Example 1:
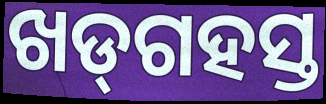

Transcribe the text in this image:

ଖଡ୍‌ଗହସ୍ତ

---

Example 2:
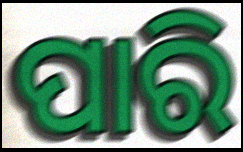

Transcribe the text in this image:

ପାରି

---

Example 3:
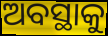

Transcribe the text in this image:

ଅବସ୍ଥାକୁ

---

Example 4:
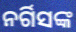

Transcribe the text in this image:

ନର୍ଗିସଙ୍କ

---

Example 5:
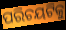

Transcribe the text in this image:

ପରିଚୟଟିକୁ